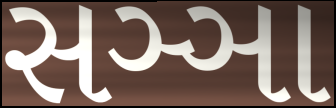
સઞ્ઞા